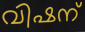
വിഷന്